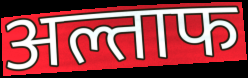
अल्ताफ